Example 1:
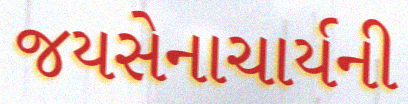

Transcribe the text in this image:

જયસેનાચાર્યની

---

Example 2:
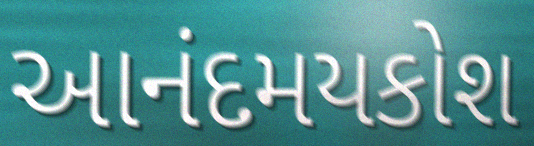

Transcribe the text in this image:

આનંદમયકોશ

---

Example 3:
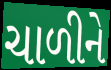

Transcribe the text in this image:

ચાળીને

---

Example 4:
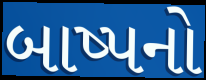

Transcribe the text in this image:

બાષ્પનો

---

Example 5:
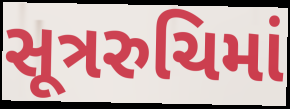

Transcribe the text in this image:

સૂત્રરુચિમાં